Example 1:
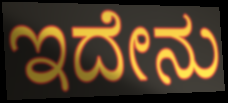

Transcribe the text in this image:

ಇದೇನು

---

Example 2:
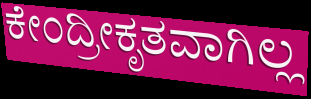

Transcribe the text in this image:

ಕೇಂದ್ರೀಕೃತವಾಗಿಲ್ಲ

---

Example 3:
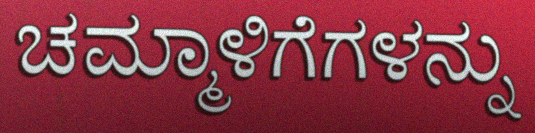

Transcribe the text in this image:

ಚಮ್ಮಾಳಿಗೆಗಳನ್ನು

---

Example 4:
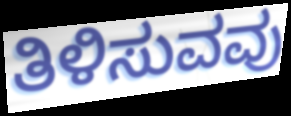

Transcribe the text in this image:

ತಿಳಿಸುವವು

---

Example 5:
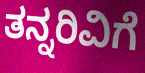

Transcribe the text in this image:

ತನ್ನರಿವಿಗೆ